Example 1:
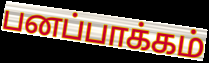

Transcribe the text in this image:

பனப்பாக்கம்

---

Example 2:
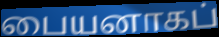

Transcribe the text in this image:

பையனாகப்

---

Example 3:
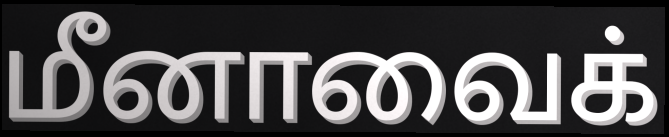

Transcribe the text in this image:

மீனாவைக்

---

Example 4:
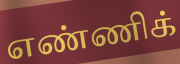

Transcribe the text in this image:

எண்ணிக்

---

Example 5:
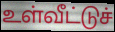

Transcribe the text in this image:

உள்வீட்டுச்